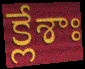
క్లేశాః